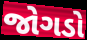
જોગડો